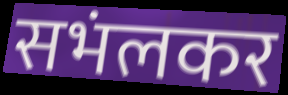
सभंलकर